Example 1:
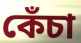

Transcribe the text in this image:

কেঁচা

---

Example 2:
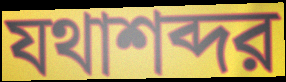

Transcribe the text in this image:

যথাশব্দর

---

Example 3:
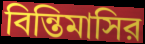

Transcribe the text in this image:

বিন্তিমাসির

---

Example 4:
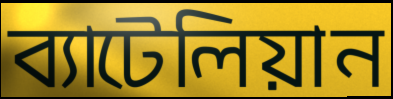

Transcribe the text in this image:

ব্যাটেলিয়ান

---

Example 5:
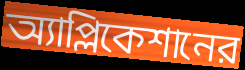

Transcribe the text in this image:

অ্যাপ্লিকেশানের